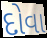
દોવા